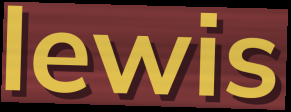
lewis